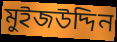
মুইজউদ্দিন